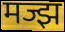
मज्झ